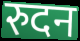
रुदन